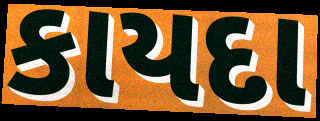
કાયદા